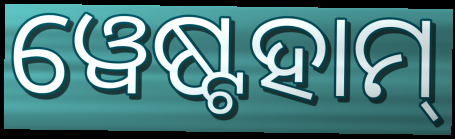
ୱେଷ୍ଟହାମ୍